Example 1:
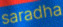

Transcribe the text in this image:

saradha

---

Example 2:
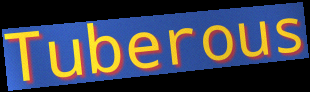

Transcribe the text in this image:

Tuberous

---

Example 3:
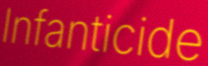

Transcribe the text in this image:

Infanticide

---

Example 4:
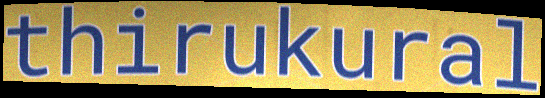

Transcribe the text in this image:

thirukural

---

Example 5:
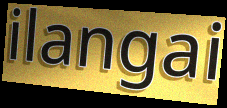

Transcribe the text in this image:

ilangai